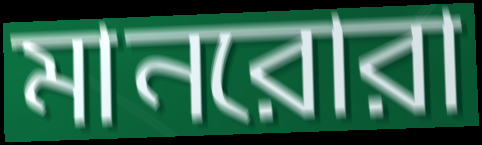
মানরোরা